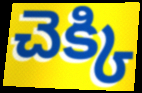
చెక్కి